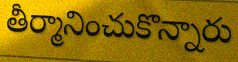
తీర్మానించుకొన్నారు